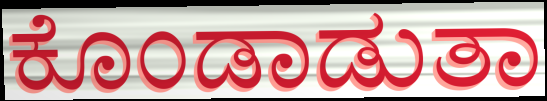
ಕೊಂಡಾಡುತಾ